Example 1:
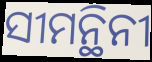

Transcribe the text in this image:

ସୀମନ୍ଥିନୀ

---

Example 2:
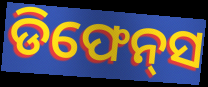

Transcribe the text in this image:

ଡିଫେନ୍‌ସ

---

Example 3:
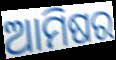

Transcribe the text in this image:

ଆମିଷର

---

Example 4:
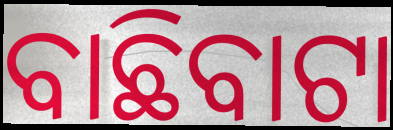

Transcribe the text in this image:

ବାଛିବାଟା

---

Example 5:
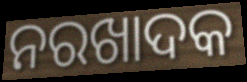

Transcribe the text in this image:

ନରଖାଦକ